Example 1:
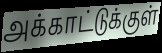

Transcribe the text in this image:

அக்காட்டுக்குள்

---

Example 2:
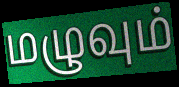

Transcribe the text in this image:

மழுவும்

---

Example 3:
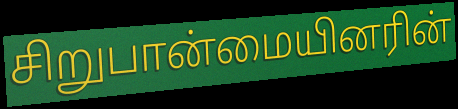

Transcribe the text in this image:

சிறுபான்மையினரின்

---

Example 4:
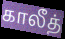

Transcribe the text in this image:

காலீத்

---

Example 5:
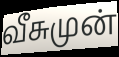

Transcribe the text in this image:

வீசுமுன்